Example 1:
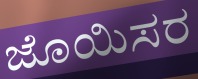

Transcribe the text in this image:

ಜೊಯಿಸರ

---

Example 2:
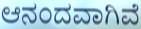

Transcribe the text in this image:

ಆನಂದವಾಗಿವೆ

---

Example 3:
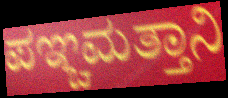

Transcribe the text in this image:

ಪಞ್ಚಮತ್ತಾನಿ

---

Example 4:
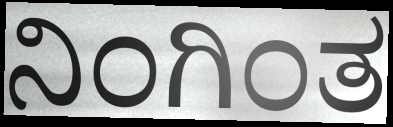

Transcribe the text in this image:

ನಿಂಗಿಂತ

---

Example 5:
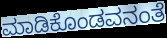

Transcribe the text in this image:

ಮಾಡಿಕೊಂಡವನಂತೆ